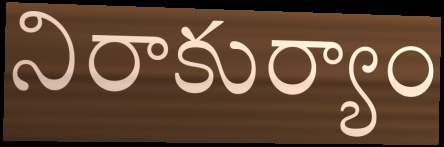
నిరాకుర్యాం